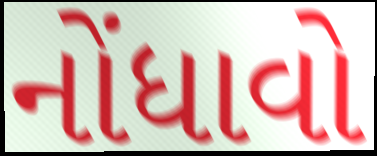
નોંધાવો